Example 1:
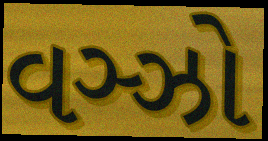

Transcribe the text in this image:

વઞ્ઝો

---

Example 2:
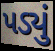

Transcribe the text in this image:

પડ્યું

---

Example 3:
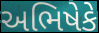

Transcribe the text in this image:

અભિષેકે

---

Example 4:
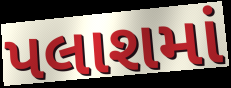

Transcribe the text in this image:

પલાશમાં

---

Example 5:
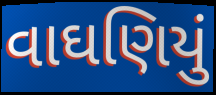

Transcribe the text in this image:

વાઘણિયું